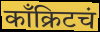
काँक्रिटचं